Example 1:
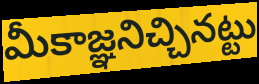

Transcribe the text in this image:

మీకాజ్ఞనిచ్చినట్టు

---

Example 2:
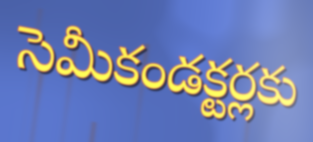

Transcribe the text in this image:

సెమీకండక్టర్లకు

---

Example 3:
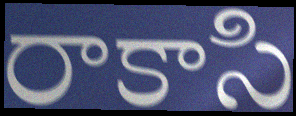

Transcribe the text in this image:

రాకాసి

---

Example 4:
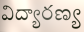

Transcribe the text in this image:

విద్యారణ్య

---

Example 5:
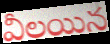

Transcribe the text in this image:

వీలయిన